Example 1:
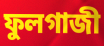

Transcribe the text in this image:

ফুলগাজী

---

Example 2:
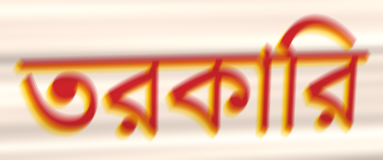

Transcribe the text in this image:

তরকারি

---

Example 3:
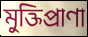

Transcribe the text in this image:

মুক্তিপ্রাণা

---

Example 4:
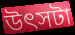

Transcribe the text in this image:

উৎসটা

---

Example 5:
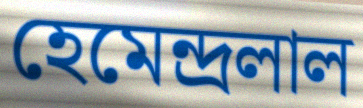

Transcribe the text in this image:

হেমেন্দ্রলাল